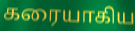
கரையாகிய